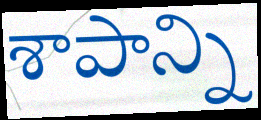
శాపాన్ని